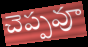
చెప్పవూ